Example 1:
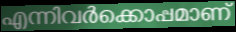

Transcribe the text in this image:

എന്നിവർക്കൊപ്പമാണ്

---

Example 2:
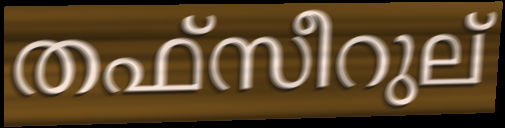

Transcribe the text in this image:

തഫ്സീറുല്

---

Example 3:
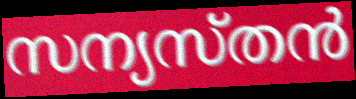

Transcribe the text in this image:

സന്യസ്തൻ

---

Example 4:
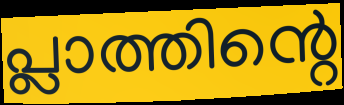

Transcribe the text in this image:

പ്ലാത്തിന്റെ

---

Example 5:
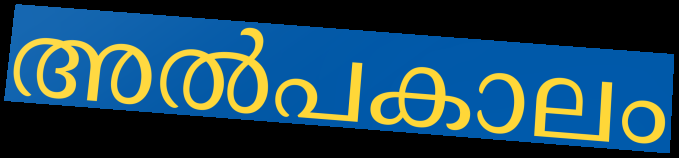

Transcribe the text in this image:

അൽപകാലം